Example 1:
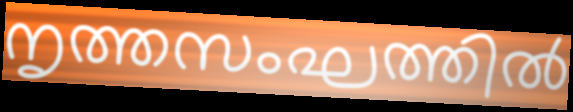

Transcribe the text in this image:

നൃത്തസംഘത്തിൽ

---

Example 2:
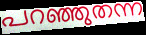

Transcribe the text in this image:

പറഞ്ഞുതന്ന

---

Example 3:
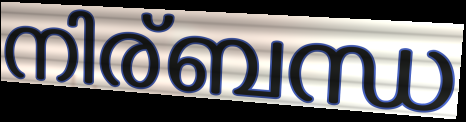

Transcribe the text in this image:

നിര്ബന്ധ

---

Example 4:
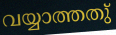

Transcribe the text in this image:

വയ്യാത്തതു്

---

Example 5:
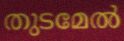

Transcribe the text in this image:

തുടമേൽ